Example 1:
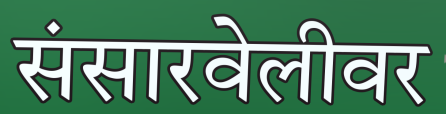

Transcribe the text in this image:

संसारवेलीवर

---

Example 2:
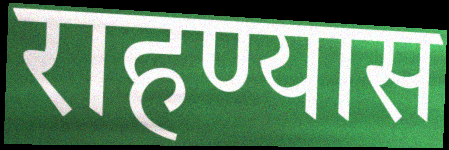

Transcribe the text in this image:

राहण्यास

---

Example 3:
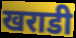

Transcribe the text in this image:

खराडी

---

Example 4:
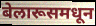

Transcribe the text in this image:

बेलारूसमधून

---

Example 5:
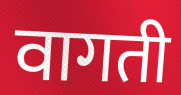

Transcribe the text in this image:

वागती